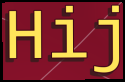
Hij